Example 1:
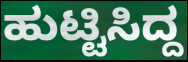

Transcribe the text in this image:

ಹುಟ್ಟಿಸಿದ್ದ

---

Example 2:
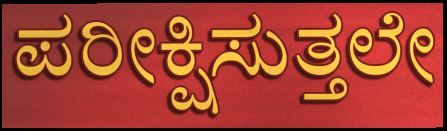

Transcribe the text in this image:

ಪರೀಕ್ಷಿಸುತ್ತಲೇ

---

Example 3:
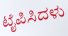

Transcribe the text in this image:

ಟೈಪಿಸಿದಳು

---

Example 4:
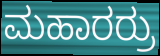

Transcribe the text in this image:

ಮಹಾರರ್ರು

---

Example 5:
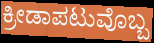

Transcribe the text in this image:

ಕ್ರೀಡಾಪಟುವೊಬ್ಬ